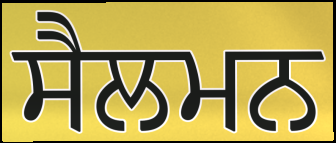
ਸੈਲਮਨ